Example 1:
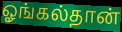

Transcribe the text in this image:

ஓங்கல்தான்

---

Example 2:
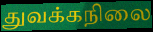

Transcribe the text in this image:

துவக்கநிலை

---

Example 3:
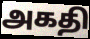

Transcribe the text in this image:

அகதி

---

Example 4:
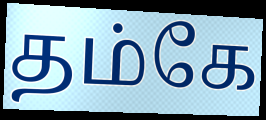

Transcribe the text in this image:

தம்கே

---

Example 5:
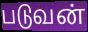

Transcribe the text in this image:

படுவன்